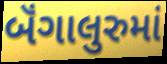
બૅંગાલુરુમાં